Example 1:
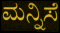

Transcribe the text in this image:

ಮನ್ನಿಸೆ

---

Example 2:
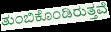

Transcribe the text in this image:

ತುಂಬಿಕೊಂಡಿರುತ್ತವೆ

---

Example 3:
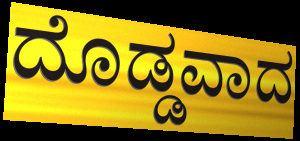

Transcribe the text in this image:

ದೊಡ್ಡವಾದ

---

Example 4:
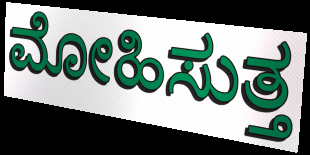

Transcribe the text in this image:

ಮೋಹಿಸುತ್ತ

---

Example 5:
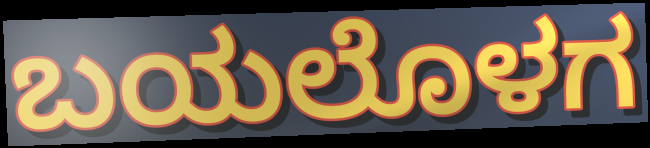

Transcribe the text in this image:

ಬಯಲೊಳಗ